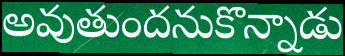
అవుతుందనుకొన్నాడు